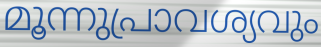
മൂന്നുപ്രാവശ്യവും